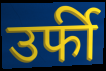
उर्फी